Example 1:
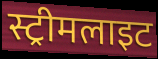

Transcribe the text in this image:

स्ट्रीमलाइट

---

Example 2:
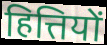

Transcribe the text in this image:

हित्तियों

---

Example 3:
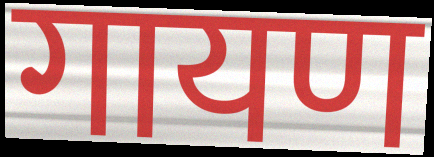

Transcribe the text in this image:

गायण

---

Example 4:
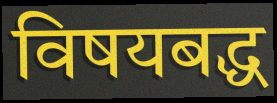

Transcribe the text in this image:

विषयबद्ध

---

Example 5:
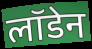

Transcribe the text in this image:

लॉडेन